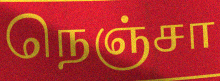
நெஞ்சா